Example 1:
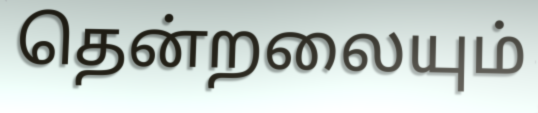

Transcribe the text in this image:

தென்றலையும்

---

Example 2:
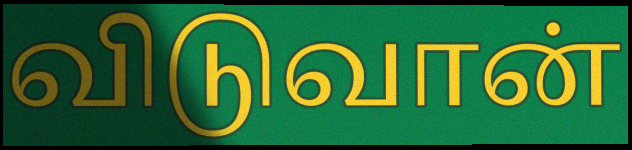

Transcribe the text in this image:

விடுவான்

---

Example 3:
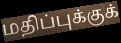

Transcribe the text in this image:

மதிப்புக்குக்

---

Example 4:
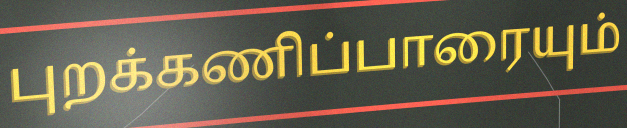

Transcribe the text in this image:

புறக்கணிப்பாரையும்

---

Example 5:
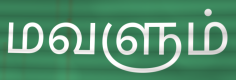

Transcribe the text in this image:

மவளும்